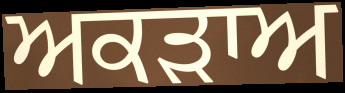
ਅਕੜਾਅ